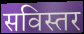
सविस्तर